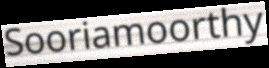
Sooriamoorthy